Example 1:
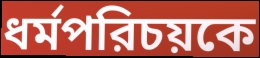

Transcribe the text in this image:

ধর্মপরিচয়কে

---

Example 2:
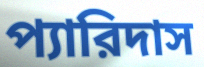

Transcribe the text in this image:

প্যারিদাস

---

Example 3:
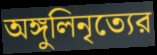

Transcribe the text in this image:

অঙ্গুলিনৃত্যের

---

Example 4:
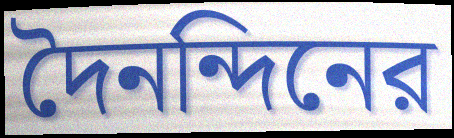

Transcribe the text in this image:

দৈনন্দিনের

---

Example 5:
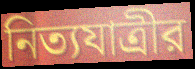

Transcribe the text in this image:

নিত্যযাত্রীর